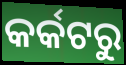
କର୍କଟରୁ